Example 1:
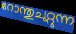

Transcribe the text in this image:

റോന്തുചുറ്റുന്ന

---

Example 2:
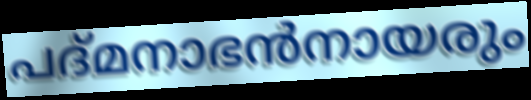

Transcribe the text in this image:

പദ്മനാഭൻനായരും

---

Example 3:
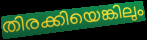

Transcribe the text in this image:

തിരക്കിയെങ്കിലും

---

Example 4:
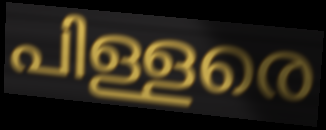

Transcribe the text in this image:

പിള്ളരെ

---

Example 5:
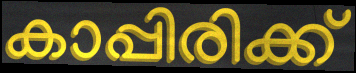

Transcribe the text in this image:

കാപ്പിരിക്ക്